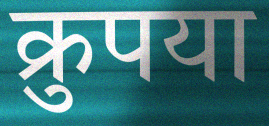
क्रुपया